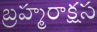
బ్రహ్మరాక్షస